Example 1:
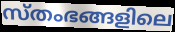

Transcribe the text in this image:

സ്തംഭങ്ങളിലെ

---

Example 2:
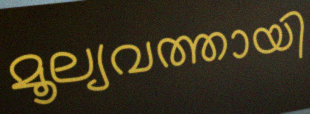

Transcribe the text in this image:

മൂല്യവത്തായി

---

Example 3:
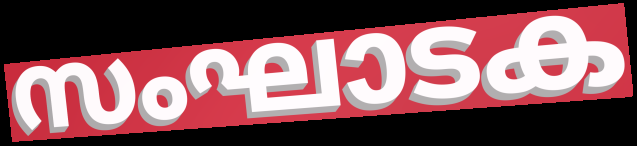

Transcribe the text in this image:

സംഘാടക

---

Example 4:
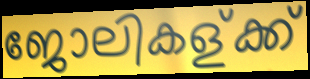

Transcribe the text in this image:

ജോലികള്ക്ക്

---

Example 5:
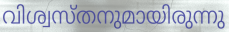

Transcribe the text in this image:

വിശ്വസ്തനുമായിരുന്നു